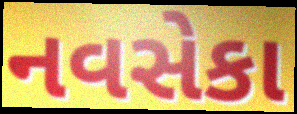
નવસેકા